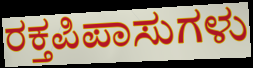
ರಕ್ತಪಿಪಾಸುಗಳು